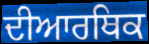
ਦੀਆਰਥਿਕ